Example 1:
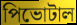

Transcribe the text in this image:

পিভোটাল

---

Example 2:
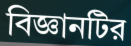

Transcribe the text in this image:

বিজ্ঞানটির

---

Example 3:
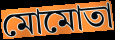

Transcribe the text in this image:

মোমোতা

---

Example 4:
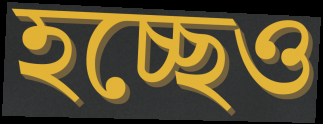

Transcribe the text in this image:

হচ্ছেও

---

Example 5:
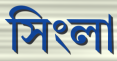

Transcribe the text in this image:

সিংলা